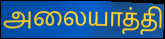
அலையாத்தி